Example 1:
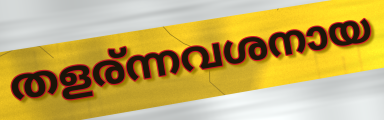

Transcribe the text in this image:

തളര്ന്നവശനായ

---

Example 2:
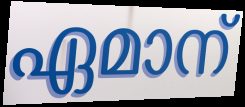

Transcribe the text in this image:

ഏമാന്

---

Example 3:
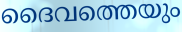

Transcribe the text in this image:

ദൈവത്തെയും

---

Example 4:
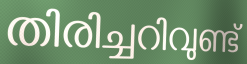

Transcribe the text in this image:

തിരിച്ചറിവുണ്ട്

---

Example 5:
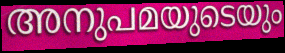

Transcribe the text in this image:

അനുപമയുടെയും